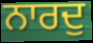
ਨਾਰਦੁ